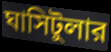
ঘাসিটুলার